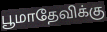
பூமாதேவிக்கு